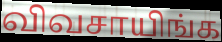
விவசாயிங்க